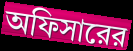
অফিসারের